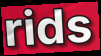
rids